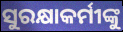
ସୁରକ୍ଷାକର୍ମୀଙ୍କୁ